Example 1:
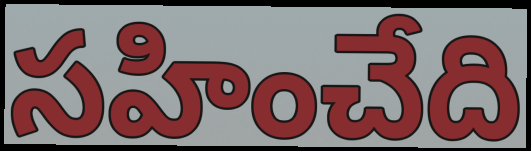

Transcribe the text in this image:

సహించేది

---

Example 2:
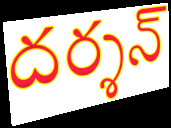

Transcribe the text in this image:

దర్శన్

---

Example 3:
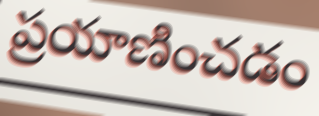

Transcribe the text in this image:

ప్రయాణించడం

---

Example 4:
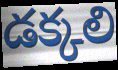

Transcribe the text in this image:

డక్కలి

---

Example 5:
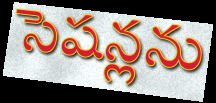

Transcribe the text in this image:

సెషన్లను